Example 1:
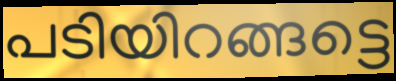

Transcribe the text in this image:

പടിയിറങ്ങട്ടെ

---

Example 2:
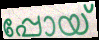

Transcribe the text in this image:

പ്പോയ്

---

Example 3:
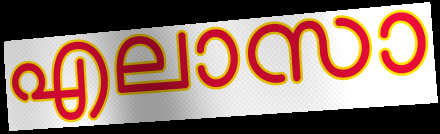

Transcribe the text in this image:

എലാസാ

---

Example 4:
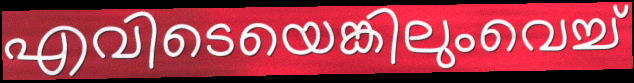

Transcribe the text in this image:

എവിടെയെങ്കിലുംവെച്ച്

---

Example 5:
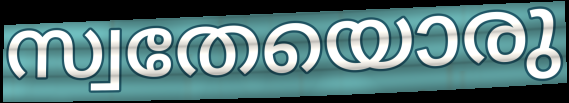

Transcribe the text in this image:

സ്വതേയൊരു